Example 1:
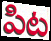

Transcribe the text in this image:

పిట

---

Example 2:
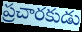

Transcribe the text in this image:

ప్రచారకుడు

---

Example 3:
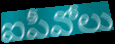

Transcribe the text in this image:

ఐపీవోలు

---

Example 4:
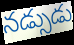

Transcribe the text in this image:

నడ్సుడు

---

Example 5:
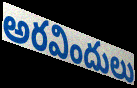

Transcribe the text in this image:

అరవిందులు